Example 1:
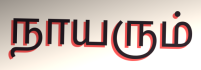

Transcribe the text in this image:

நாயரும்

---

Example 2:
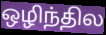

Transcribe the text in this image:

ஒழிந்தில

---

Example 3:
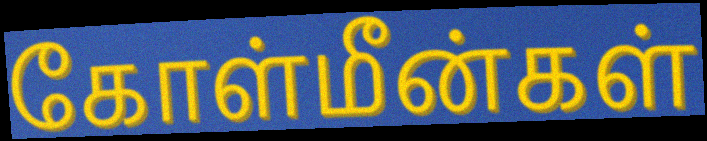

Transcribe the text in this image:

கோள்மீன்கள்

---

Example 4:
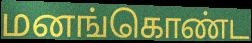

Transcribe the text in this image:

மனங்கொண்ட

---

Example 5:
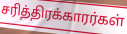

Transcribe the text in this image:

சரித்திரக்காரர்கள்